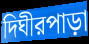
দিঘীরপাড়া